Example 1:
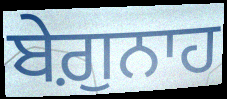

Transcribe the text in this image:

ਬੇਗ਼ੁਨਾਹ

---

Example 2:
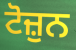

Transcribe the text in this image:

ਟੋਜ਼ੁਨ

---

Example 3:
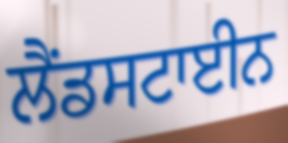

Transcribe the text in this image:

ਲੈਂਡਸਟਾਈਨ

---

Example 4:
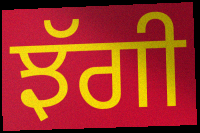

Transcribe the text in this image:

ਝੱਗੀ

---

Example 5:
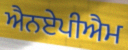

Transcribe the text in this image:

ਐਨਏਪੀਐਮ